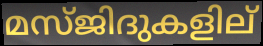
മസ്ജിദുകളില്